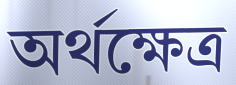
অৰ্থক্ষেত্ৰ